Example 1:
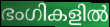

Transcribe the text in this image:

ഭംഗികളിൽ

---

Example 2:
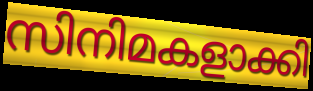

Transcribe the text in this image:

സിനിമകളാക്കി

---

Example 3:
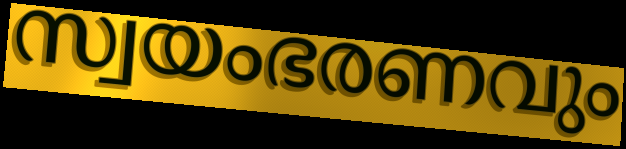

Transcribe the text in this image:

സ്വയംഭരണവും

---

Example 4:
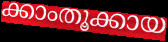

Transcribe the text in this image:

ക്കാംതൂക്കായ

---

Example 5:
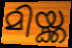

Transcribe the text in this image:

മിയ്ക്ക